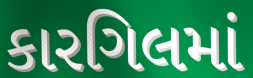
કારગિલમાં